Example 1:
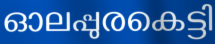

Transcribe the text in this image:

ഓലപ്പുരകെട്ടി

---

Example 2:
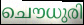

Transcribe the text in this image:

ചൌധുരി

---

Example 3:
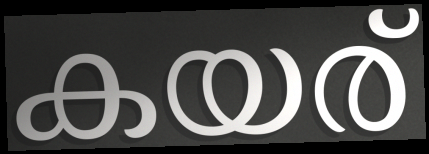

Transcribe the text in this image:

കയര്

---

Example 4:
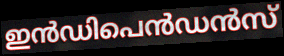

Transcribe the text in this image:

ഇൻഡിപെൻഡൻസ്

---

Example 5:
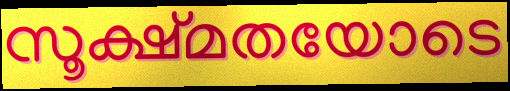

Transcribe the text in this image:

സൂക്ഷ്മതയോടെ